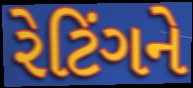
રેટિંગને